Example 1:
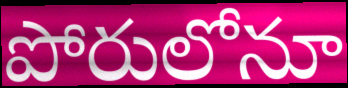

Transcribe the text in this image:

పోరులోనూ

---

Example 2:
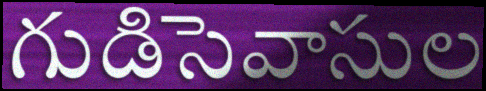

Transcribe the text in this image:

గుడిసెవాసుల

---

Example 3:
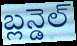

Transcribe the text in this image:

బ్లన్డెల్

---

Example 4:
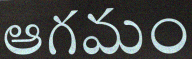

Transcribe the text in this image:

ఆగమం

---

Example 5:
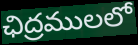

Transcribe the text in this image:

ఛిద్రములలో